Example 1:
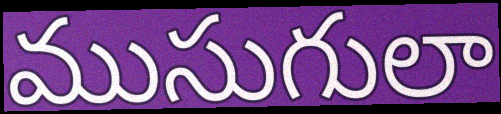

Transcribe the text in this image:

ముసుగులా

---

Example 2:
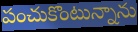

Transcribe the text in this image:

పంచుకొంటున్నాను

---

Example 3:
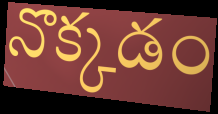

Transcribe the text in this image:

నొక్కడం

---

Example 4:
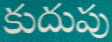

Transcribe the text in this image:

కుదుపు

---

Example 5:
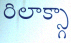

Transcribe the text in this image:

రిలాక్స్గా